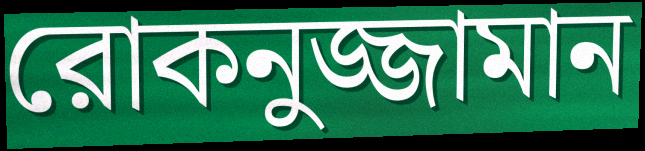
রোকনুজ্জামান